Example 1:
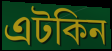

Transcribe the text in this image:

এটকিন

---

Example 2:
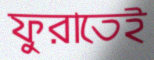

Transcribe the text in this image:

ফুরাতেই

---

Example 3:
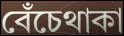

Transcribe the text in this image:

বেঁচেথাকা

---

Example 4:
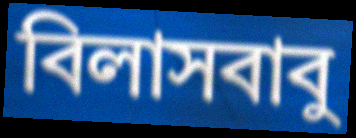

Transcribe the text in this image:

বিলাসবাবু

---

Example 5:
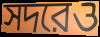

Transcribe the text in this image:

সদরেও